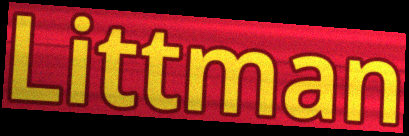
Littman